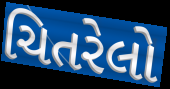
ચિતરેલો